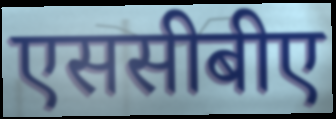
एससीबीए